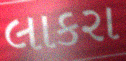
લાકરા